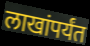
लाखांपर्यंत